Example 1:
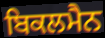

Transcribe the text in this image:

ਬਿਕਲਮੈਨ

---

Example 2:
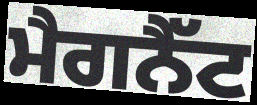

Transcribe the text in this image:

ਮੈਗਨੈੱਟ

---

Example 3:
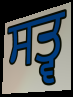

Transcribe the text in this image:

ਸਤ੍ਵ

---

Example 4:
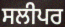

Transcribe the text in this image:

ਸਲੀਪਰ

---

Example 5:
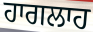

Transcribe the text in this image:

ਹਾਗਲਾਹ